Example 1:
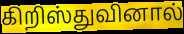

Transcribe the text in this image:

கிறிஸ்துவினால்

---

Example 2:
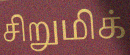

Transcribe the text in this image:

சிறுமிக்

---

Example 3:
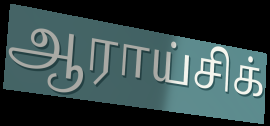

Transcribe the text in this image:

ஆராய்சிக்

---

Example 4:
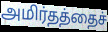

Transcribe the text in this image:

அமிர்தத்தைச்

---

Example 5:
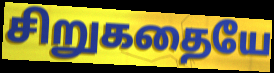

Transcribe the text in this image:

சிறுகதையே